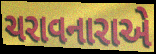
ચરાવનારાએ